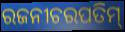
ରଜନୀଚରପତିମ୍